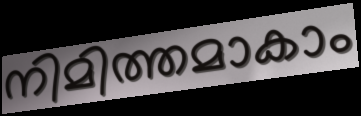
നിമിത്തമാകാം